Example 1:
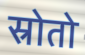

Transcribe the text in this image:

स्रोतो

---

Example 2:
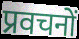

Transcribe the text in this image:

प्रवचनों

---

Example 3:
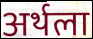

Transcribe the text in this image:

अर्थला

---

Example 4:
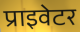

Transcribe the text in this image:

प्राइवेटर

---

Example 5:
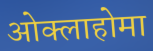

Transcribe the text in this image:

ओक्लाहोमा